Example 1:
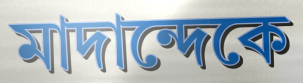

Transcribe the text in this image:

মাদান্দেকে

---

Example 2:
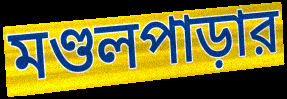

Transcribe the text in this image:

মণ্ডলপাড়ার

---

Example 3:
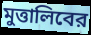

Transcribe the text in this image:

মুত্তালিবের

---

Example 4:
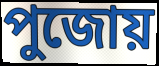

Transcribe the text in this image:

পুজোয়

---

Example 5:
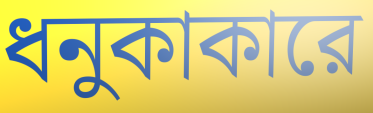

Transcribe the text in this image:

ধনুকাকারে